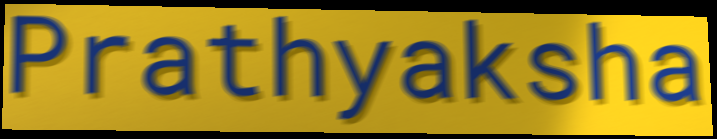
Prathyaksha